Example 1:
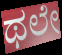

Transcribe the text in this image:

ಥಲೇ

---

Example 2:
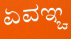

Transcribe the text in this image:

ಏವಞ್ಚ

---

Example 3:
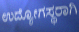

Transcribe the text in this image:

ಉದ್ಯೋಗಸ್ಥರಾಗಿ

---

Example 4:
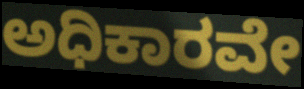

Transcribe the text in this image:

ಅಧಿಕಾರವೇ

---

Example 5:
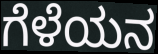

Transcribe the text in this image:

ಗೆಳೆಯನ